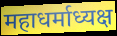
महाधर्माध्यक्ष